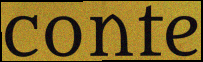
conte